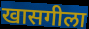
खासगीला